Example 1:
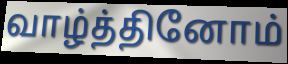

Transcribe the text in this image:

வாழ்த்தினோம்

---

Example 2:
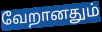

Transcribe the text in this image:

வேறானதும்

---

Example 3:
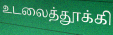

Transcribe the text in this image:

உடலைத்தூக்கி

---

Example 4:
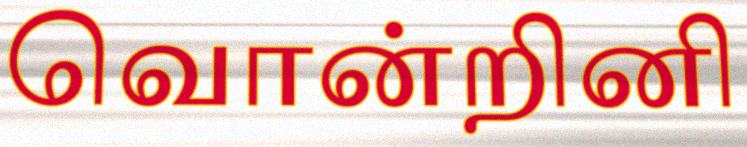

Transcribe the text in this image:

வொன்றினி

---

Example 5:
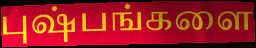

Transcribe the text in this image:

புஷ்பங்களை